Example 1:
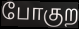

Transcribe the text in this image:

போகுற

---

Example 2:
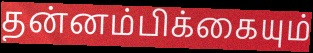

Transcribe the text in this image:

தன்னம்பிக்கையும்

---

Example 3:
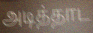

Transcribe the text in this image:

அடித்தாட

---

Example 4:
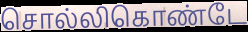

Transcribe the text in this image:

சொல்லிகொண்டே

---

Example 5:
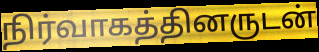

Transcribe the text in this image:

நிர்வாகத்தினருடன்